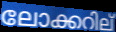
ലോക്കറില്